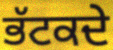
ਭੱਟਕਦੇ